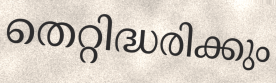
തെറ്റിദ്ധരിക്കും